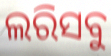
ଲରିସବୁ